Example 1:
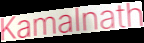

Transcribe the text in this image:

Kamalnath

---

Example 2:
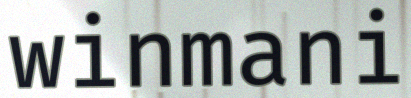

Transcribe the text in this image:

winmani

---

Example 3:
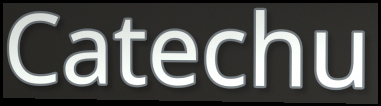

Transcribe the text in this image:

Catechu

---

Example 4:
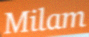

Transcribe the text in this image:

Milam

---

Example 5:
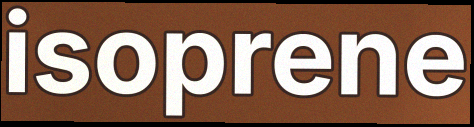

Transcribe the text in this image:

isoprene